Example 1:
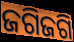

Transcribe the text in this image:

ଜଗିଜଗି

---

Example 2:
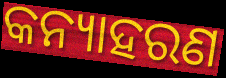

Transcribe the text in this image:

କନ୍ୟାହରଣ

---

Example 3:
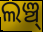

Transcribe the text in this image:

ଲଞ୍ଚ୍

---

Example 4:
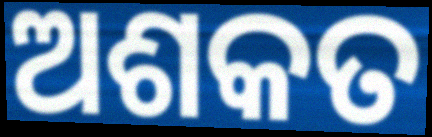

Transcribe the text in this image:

ଅଶକତ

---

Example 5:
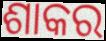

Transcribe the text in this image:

ଶାକର